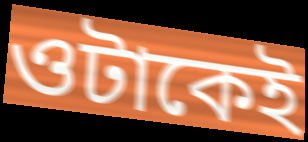
ওটাকেই